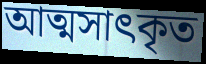
আত্মসাৎকৃত